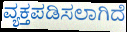
ವ್ಯಕ್ತಪಡಿಸಲಾಗಿದೆ